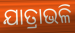
ଯାତ୍ରାଭଳି